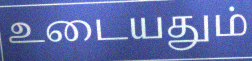
உடையதும்